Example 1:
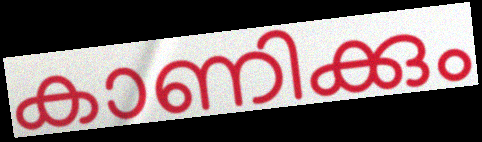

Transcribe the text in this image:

കാണിക്കും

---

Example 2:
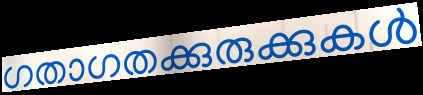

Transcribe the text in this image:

ഗതാഗതക്കുരുക്കുകൾ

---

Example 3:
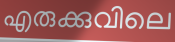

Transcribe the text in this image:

എരുക്കുവിലെ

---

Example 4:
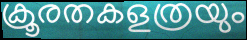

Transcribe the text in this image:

ക്രൂരതകളത്രയും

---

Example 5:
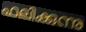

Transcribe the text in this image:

ഫലിക്കുന്നു